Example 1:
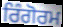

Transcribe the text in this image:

ਰਿੰਗੋਰਮ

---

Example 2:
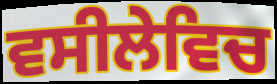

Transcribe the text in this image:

ਵਸੀਲੇਵਿਚ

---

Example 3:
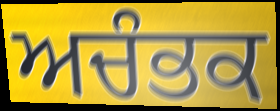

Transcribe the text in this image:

ਅਚੰਭਕ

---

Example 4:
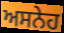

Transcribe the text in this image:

ਅਸਨੇਹ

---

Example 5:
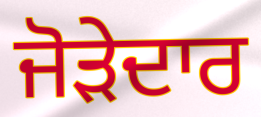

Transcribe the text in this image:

ਜੋੜੇਦਾਰ